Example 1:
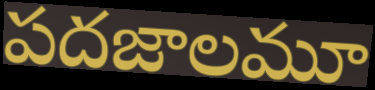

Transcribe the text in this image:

పదజాలమూ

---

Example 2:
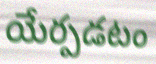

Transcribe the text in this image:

యేర్పడటం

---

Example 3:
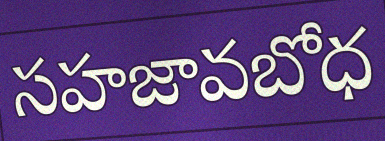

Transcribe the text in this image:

సహజావబోధ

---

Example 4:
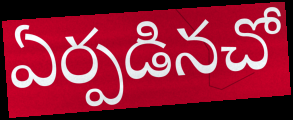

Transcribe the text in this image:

ఏర్పడినచో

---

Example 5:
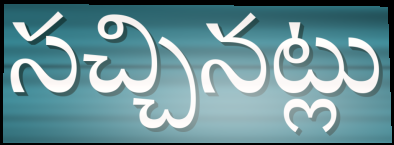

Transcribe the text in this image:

సచ్చినట్లు